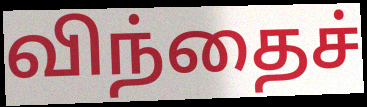
விந்தைச்